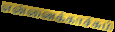
என்னைக்காச்சும்